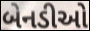
બેનડીઓ